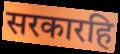
सरकारहि